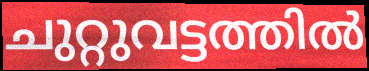
ചുറ്റുവട്ടത്തിൽ